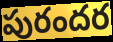
పురందర